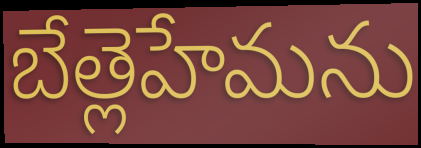
బేత్లెహేమను